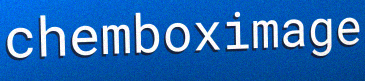
chemboximage